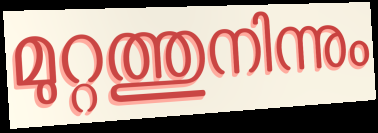
മുറ്റത്തുനിന്നും